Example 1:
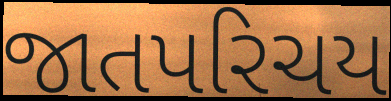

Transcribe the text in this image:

જાતપરિચય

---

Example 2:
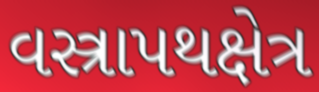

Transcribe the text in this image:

વસ્ત્રાપથક્ષેત્ર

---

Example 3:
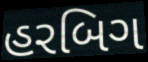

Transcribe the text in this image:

હરબિગ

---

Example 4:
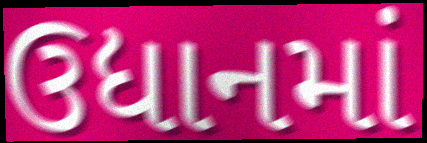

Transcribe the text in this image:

ઉદ્યાનમાં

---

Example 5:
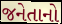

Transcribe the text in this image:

જનેતાનો